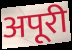
अपूरी